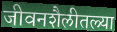
जीवनशैलीतल्या